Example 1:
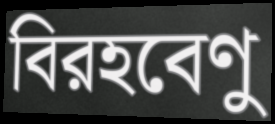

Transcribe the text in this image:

বিরহবেণু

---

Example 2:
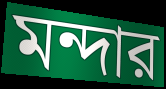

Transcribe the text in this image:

মন্দার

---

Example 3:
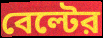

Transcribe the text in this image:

বেল্টের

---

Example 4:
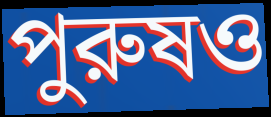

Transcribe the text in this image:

পুরুষও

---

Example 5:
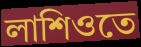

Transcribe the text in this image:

লাশিওতে